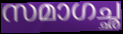
സമാഗച്ഛ